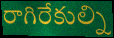
రాగిరేకుల్ని